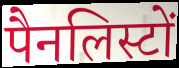
पैनलिस्टों